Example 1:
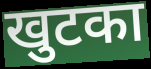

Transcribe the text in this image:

खुटका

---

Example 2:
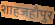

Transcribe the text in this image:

शाहजहाँपुर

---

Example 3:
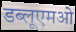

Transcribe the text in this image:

डब्लूएमओ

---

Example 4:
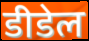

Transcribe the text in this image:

डीडेल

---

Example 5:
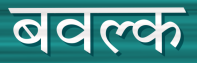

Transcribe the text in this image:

बवल्क